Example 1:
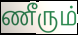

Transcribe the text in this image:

ணீரும்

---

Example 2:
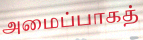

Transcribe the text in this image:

அமைப்பாகத்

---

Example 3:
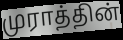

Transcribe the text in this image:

முராத்தின்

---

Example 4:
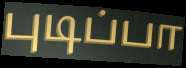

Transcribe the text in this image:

புடிப்பா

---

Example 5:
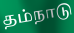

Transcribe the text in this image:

தம்நாடு